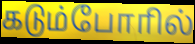
கடும்போரில்